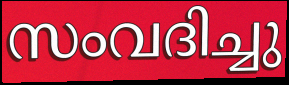
സംവദിച്ചു